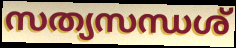
സത്യസന്ധശ്